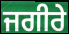
ਜਗੀਰੇ